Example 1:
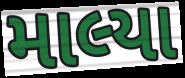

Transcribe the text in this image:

માલ્યા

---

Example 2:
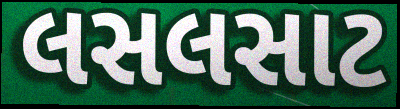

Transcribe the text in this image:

લસલસાટ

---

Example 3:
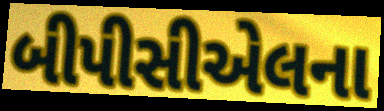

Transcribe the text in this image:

બીપીસીએલના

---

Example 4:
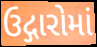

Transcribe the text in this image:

ઉદ્ગારોમાં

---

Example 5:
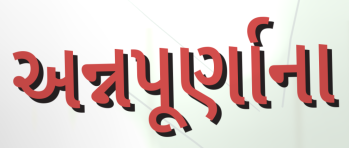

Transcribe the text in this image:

અન્નપૂર્ણાના